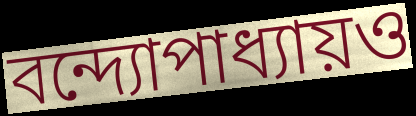
বন্দ্যোপাধ্যায়ও